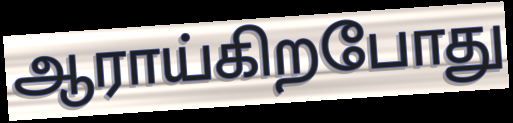
ஆராய்கிறபோது